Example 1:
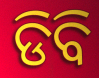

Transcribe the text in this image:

ଡିବି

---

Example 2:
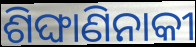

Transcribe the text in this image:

ଶିଙ୍ଘାଣିନାକୀ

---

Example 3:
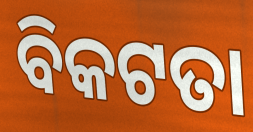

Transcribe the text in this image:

ବିକଟତା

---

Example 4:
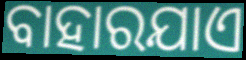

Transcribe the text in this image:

ବାହାରଯାଏ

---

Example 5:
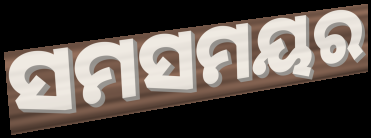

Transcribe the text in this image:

ସମସମୟର